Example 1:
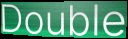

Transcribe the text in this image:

Double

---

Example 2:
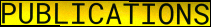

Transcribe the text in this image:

PUBLICATIONS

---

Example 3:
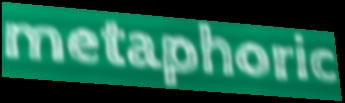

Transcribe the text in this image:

metaphoric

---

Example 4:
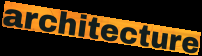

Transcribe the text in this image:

architecture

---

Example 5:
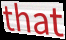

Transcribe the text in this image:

that